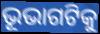
ଭୂଭାଗଟିକୁ